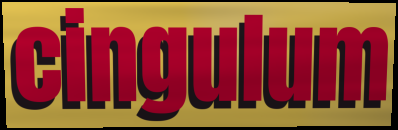
cingulum